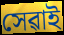
সেৱাই